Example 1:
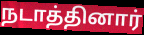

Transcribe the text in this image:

நடாத்தினார்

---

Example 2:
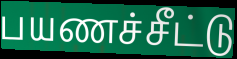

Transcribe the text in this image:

பயணச்சீட்டு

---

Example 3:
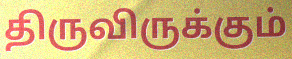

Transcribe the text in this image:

திருவிருக்கும்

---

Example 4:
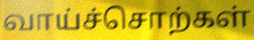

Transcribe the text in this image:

வாய்ச்சொற்கள்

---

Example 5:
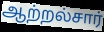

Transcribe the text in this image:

ஆற்றல்சார்